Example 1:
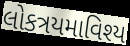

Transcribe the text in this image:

લોકત્રયમાવિશ્ય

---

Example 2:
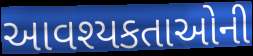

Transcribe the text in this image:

આવશ્યકતાઓની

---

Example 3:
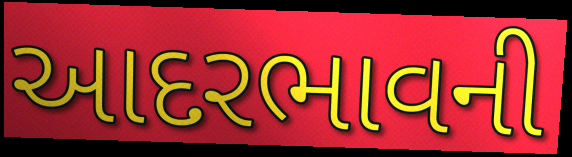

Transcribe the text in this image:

આદરભાવની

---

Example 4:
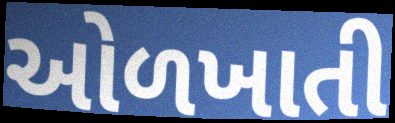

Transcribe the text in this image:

ઓળખાતી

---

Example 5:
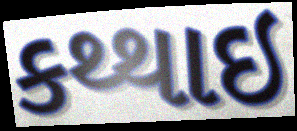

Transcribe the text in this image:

કથ્થાઇ